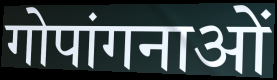
गोपांगनाओं